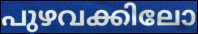
പുഴവക്കിലോ